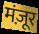
मंज़ूर